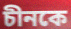
চীনকে